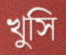
খুসি